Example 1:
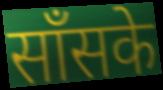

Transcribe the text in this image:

साँसके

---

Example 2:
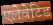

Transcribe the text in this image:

एलेवेटिड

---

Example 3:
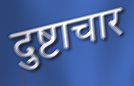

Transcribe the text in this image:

दुष्टाचार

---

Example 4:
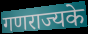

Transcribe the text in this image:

गणराज्यके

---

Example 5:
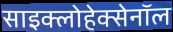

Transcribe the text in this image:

साइक्लोहेक्सेनॉल